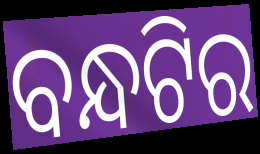
ବନ୍ଧଟିର